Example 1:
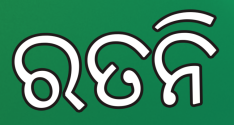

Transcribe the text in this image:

ରତନି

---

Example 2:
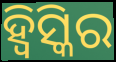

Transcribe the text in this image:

ହ୍ୱିସ୍କିର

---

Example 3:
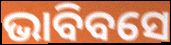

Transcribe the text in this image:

ଭାବିବସେ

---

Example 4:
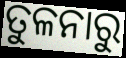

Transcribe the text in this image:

ତୁଳନାରୁ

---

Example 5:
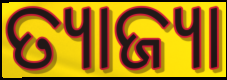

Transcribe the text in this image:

ତ୍ଯାଜ୍ୟା